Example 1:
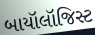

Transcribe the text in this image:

બાયૉલૉજિસ્ટ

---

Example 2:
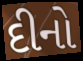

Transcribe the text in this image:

દીનો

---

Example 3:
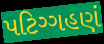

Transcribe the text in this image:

પટિગ્ગહણં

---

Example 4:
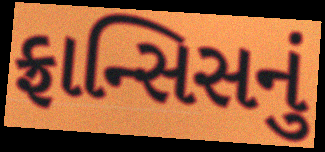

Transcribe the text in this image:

ફ્રાન્સિસનું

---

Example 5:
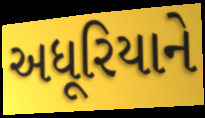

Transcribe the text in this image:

અધૂરિયાને